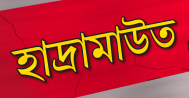
হাদ্রামাউত